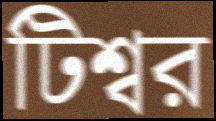
টিশ্বর